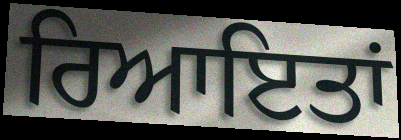
ਰਿਆਇਤਾਂ